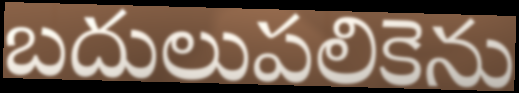
బదులుపలికెను